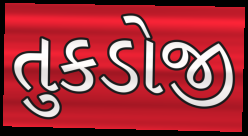
તુકડોજી